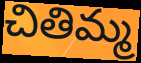
చితిమ్మ